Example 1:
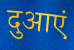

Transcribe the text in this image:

दुआएं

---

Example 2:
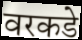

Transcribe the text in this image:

वरकडे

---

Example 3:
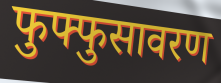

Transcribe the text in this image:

फुफ्फुसावरण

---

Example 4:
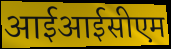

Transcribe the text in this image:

आईआईसीएम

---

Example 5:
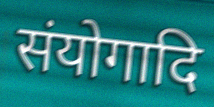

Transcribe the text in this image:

संयोगादि